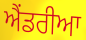
ਐਂਡਰੀਆ